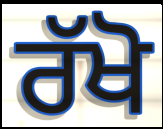
ਰੱਖੋ